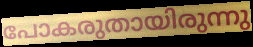
പോകരുതായിരുന്നു